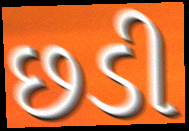
છડી